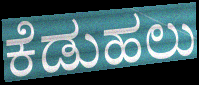
ಕೆಡುಹಲು